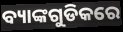
ବ୍ୟାଙ୍କଗୁଡିକରେ